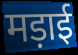
मड़ाई